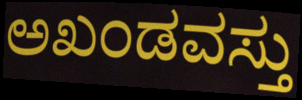
ಅಖಂಡವಸ್ತು